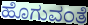
ಹೊಗುವಂತೆ